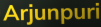
Arjunpuri